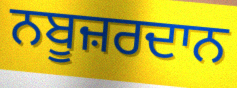
ਨਬੂਜ਼ਰਦਾਨ